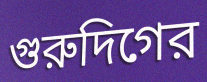
গুরুদিগের